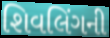
શિવલિંગની